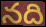
నది